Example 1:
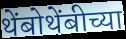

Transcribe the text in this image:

थेंबोथेंबीच्या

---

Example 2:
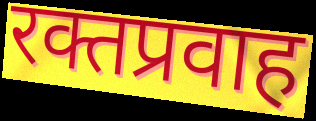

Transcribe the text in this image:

रक्तप्रवाह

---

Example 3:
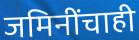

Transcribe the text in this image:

जमिनींचाही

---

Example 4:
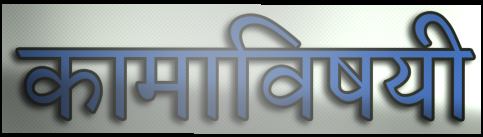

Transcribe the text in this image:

कामाविषयी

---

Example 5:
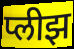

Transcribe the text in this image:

प्लीझ